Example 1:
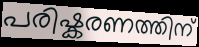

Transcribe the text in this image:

പരിഷ്കരണത്തിന്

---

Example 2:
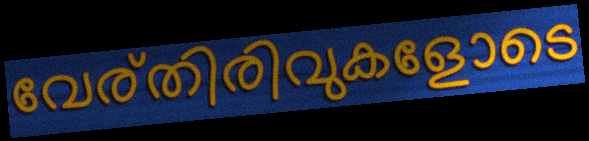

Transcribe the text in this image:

വേര്തിരിവുകളോടെ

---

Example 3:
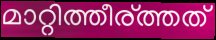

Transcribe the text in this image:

മാറ്റിത്തീര്ത്തത്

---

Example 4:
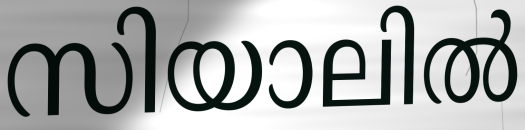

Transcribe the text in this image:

സിയാലിൽ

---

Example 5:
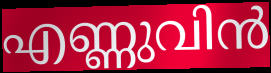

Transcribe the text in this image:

എണ്ണുവിൻ